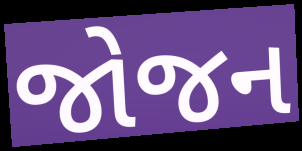
જોજન